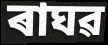
ৰাঘৱ